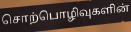
சொற்பொழிவுகளின்